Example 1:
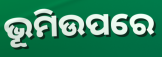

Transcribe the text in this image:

ଭୂମିଉପରେ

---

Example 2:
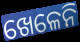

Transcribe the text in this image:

ଖେଳେନି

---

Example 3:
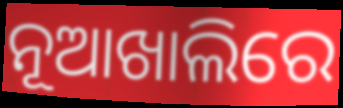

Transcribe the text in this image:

ନୂଆଖାଲିରେ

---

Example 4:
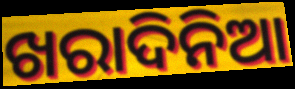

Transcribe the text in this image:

ଖରାଦିନିଆ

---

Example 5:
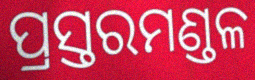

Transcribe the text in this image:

ପ୍ରସ୍ତରମଣ୍ଡଳ